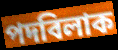
পদবিলাক